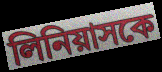
লিনিয়াসকে